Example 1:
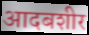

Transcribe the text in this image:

आदबशीर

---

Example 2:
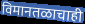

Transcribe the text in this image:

विमानतळाचाही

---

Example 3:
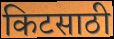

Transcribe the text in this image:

किटसाठी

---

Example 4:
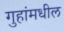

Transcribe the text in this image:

गुहांमधील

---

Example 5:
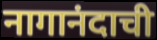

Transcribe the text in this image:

नागानंदाची